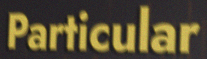
Particular